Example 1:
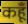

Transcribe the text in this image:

कहूँ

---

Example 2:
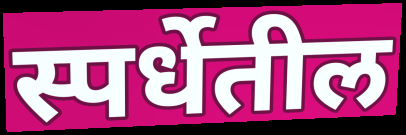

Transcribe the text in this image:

स्पर्धेतील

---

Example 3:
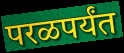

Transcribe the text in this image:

परळपर्यंत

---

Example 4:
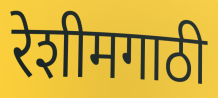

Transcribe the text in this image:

रेशीमगाठी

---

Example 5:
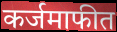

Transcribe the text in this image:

कर्जमाफीत